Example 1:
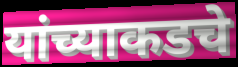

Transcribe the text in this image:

यांच्याकडचे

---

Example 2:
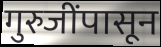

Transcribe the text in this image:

गुरुजींपासून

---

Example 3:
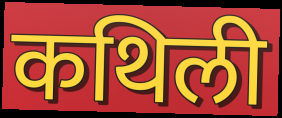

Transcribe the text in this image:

कथिली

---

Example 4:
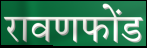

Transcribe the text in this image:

रावणफोंड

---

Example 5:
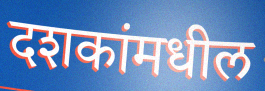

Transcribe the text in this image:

दशकांमधील